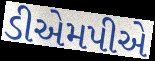
ડીએમપીએ